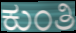
ಕುಂತಿ